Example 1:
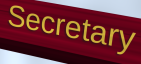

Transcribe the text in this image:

Secretary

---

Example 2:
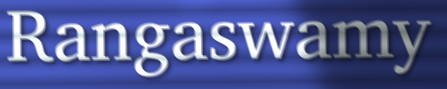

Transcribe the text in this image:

Rangaswamy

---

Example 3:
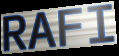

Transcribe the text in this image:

RAFI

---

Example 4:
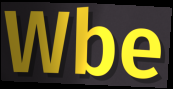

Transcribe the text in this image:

Wbe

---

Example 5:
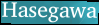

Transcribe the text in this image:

Hasegawa